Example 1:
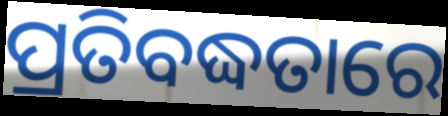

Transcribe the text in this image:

ପ୍ରତିବଦ୍ଧତାରେ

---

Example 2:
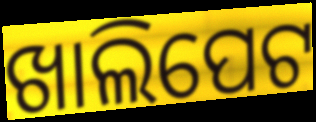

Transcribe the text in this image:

ଖାଲିପେଟ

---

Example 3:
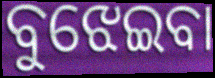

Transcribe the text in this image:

ବୁଝେଇବା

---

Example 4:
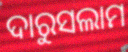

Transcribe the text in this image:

ଦାରୁସଲାମ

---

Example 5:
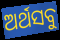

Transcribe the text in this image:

ଅର୍ଥସବୁ